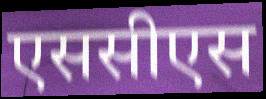
एससीएस